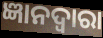
ଜ୍ଞାନଦ୍ଵାରା